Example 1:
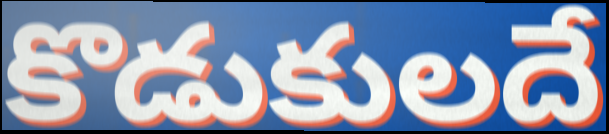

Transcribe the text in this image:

కొడుకులదే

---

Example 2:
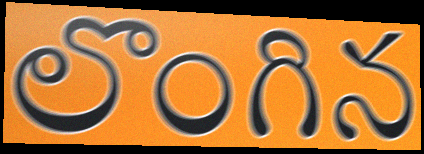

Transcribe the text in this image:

లొంగిన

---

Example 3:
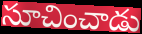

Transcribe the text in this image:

సూచించాడు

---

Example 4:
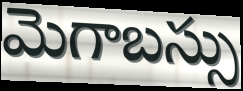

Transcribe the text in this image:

మెగాబస్సు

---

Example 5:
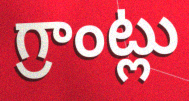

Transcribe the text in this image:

గ్రాంట్లు